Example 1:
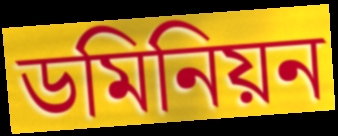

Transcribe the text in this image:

ডমিনিয়ন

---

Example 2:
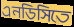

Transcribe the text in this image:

এনডিসিতে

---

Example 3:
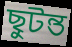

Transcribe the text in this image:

ছুটন্ত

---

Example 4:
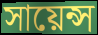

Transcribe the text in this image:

সায়েন্স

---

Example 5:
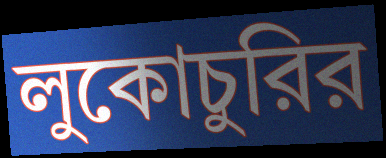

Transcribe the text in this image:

লুকোচুরির